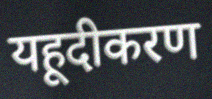
यहूदीकरण